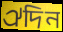
ঐদিন